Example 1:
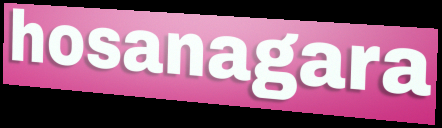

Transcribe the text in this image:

hosanagara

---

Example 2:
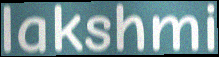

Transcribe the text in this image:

lakshmi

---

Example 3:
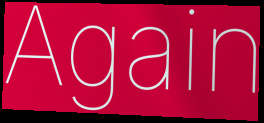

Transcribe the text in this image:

Again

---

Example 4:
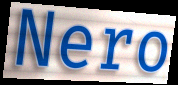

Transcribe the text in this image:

Nero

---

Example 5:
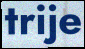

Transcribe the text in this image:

trije